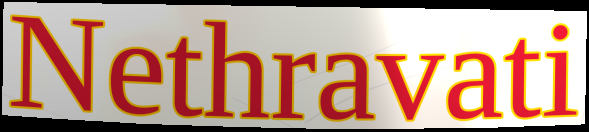
Nethravati